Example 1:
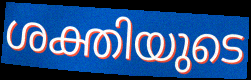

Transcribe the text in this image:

ശക്തിയുടെ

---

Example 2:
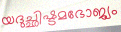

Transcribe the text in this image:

യദുച്ഛിഷ്ടമഭോജ്യം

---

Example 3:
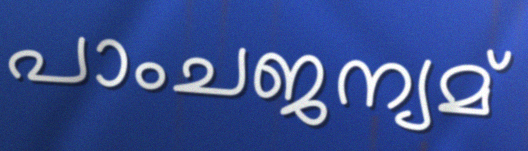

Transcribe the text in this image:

പാംചജന്യമ്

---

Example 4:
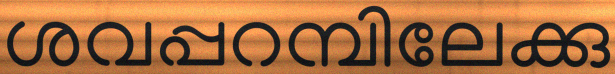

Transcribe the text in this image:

ശവപ്പറമ്പിലേക്കു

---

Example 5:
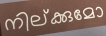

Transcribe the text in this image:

നില്ക്കുമോ